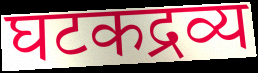
घटकद्रव्य